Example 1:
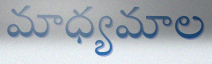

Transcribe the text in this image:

మాధ్యమాల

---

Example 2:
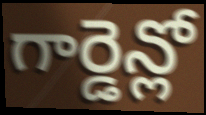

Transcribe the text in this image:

గార్డెన్లో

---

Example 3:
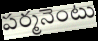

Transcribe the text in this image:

పర్మనెంటు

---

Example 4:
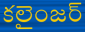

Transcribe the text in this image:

కలైంజర్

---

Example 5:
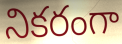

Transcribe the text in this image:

నికరంగా